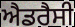
ਐਡਰੈਸੀ